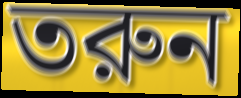
তরুন